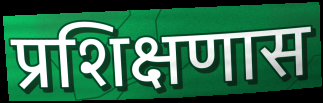
प्रशिक्षणास